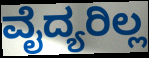
ವೈದ್ಯರಿಲ್ಲ